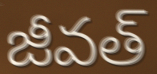
జీవత్